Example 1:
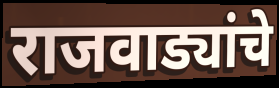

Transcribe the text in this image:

राजवाड्यांचे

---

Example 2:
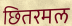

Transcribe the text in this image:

छितरमल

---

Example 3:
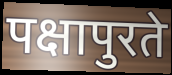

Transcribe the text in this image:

पक्षापुरते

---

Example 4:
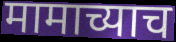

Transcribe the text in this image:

मामाच्याच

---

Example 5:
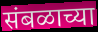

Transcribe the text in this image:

संबळाच्या